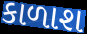
કાળાશ